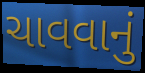
ચાવવાનું